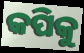
କପିକୁ